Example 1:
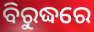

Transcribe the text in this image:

ବିରୁଦ୍ଧରେ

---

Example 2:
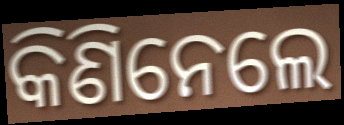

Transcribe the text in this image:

କିଣିନେଲେ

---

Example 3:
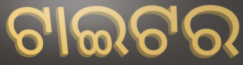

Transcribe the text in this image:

ଟାଇଟର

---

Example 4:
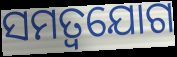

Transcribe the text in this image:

ସମତ୍ୱଯୋଗ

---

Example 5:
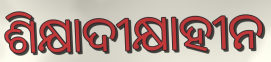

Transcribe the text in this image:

ଶିକ୍ଷାଦୀକ୍ଷାହୀନ